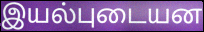
இயல்புடையன